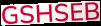
GSHSEB